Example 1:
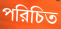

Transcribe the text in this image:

পরিচিত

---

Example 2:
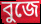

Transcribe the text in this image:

বুজে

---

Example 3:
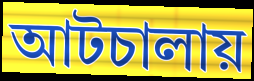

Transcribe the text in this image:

আটচালায়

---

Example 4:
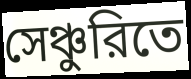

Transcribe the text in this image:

সেঞ্চুরিতে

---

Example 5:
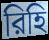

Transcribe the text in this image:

রিহি